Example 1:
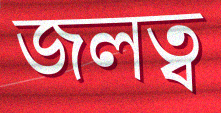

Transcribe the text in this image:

জলত্ব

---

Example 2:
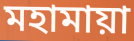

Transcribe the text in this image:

মহামায়া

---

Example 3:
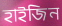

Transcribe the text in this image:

হাইজিন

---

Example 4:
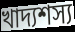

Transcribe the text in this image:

খাদ্যশস্য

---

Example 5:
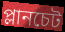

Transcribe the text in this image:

প্লানচেট